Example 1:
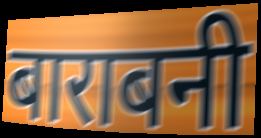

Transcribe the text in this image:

बाराबनी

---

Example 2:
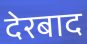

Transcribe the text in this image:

देरबाद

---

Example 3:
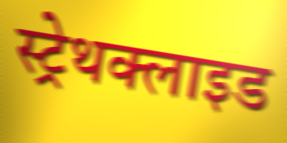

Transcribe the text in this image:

स्ट्रेथक्लाइड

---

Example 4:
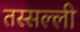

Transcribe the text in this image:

तस्सल्ली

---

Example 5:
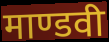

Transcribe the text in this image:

माण्डवी